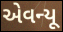
એવન્યૂ